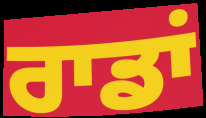
ਰਾਡਾਂ